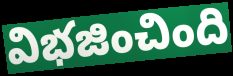
విభజించింది